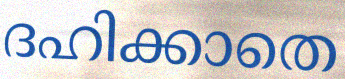
ദഹിക്കാതെ